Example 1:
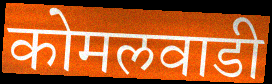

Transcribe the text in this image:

कोमलवाडी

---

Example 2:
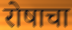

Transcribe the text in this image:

रोषाचा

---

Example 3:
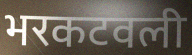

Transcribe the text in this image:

भरकटवली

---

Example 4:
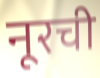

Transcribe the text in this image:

नूरची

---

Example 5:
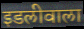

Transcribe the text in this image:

इडलीवाला